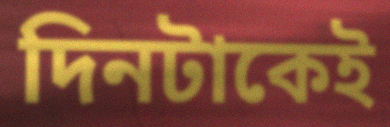
দিনটাকেই